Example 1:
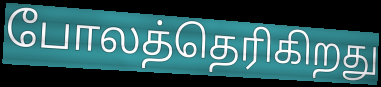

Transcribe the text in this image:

போலத்தெரிகிறது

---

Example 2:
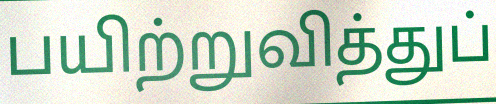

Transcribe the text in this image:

பயிற்றுவித்துப்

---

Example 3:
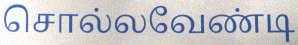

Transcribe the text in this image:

சொல்லவேண்டி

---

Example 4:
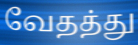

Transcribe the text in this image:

வேதத்து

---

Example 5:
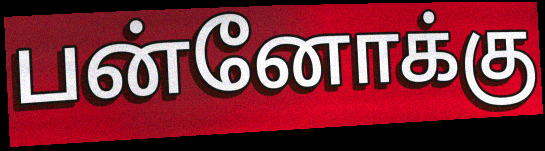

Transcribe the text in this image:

பன்னோக்கு